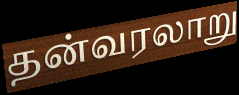
தன்வரலாறு